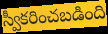
స్వీకరించబడింది